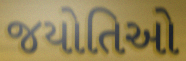
જયોતિઓ